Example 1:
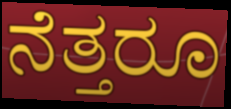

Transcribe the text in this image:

ನೆತ್ತರೂ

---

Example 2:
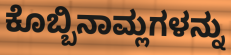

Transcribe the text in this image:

ಕೊಬ್ಬಿನಾಮ್ಲಗಳನ್ನು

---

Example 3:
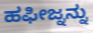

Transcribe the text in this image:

ಹಫೀಜ್ನನ್ನು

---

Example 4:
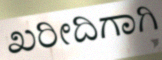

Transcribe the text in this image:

ಖರೀದಿಗಾಗಿ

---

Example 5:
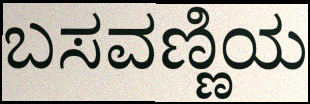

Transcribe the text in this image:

ಬಸವಣ್ಣಿಯ